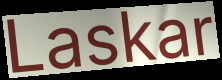
Laskar